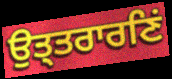
ਉਤ੍ਤਰਾਰਣਿਂ